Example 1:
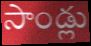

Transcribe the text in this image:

సాండ్లు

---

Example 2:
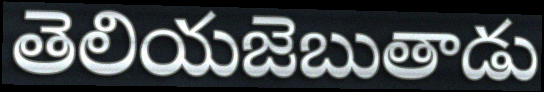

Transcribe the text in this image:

తెలియజెబుతాడు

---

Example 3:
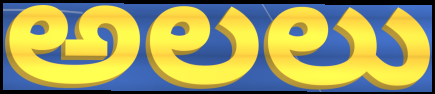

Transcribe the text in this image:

అలలు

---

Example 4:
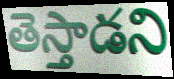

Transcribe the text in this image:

తెస్తాడని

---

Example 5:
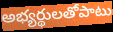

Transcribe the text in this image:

అభ్యర్థులతోపాటు